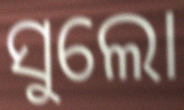
ସୁଲୋ